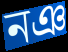
নঞ